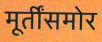
मूर्तींसमोर